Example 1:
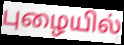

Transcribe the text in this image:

புழையில்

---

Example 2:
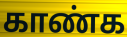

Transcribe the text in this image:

காண்க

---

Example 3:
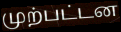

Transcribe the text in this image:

முற்பட்டன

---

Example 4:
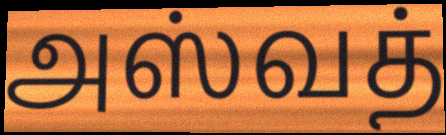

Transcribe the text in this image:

அஸ்வத்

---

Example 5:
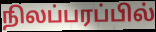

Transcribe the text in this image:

நிலப்பரப்பில்